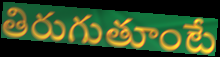
తిరుగుతూంటే